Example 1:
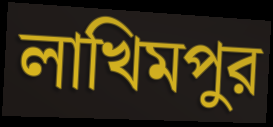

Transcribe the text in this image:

লাখিমপুর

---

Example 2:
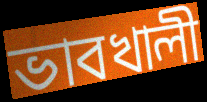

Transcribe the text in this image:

ভাবখালী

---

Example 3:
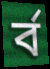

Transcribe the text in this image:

র্ব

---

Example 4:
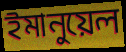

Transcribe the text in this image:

ইমানুয়েল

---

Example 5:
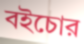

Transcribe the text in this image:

বইচোর